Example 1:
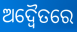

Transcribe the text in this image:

ଅଦ୍ୱୈତରେ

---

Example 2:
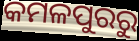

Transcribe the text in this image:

କମଳପୁରରୁ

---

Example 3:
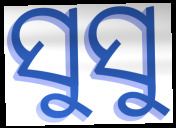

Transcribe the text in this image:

ସୁସୁ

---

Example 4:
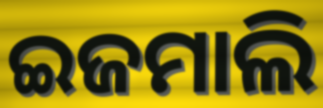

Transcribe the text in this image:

ଇଜମାଲି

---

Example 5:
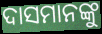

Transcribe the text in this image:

ଦାସମାନଙ୍କୁ